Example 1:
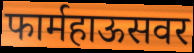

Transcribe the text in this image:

फार्महाऊसवर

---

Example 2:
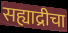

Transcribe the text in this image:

सह्याद्रीचा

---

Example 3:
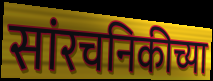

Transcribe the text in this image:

सांरचनिकीच्या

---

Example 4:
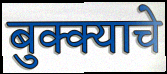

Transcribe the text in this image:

बुक्क्याचे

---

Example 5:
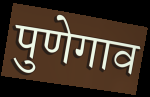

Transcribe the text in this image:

पुणेगाव